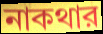
নাকথার